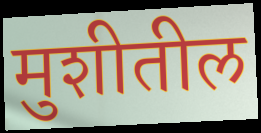
मुशीतील